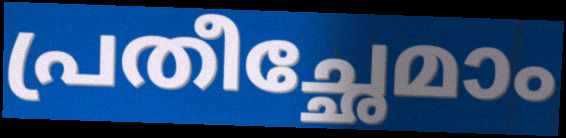
പ്രതീച്ഛേമാം